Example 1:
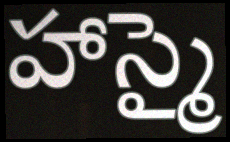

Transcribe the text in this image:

హాస్మై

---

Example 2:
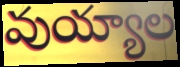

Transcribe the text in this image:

వుయ్యాల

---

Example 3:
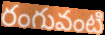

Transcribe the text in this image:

రంగువంటి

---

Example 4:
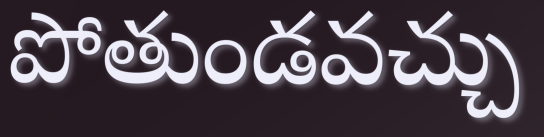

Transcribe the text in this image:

పోతుండవచ్చు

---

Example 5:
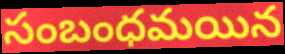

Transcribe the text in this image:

సంబంధమయిన